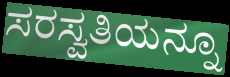
ಸರಸ್ವತಿಯನ್ನೂ